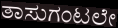
ತಾಸುಗಂಟಲೇ